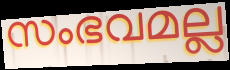
സംഭവമല്ല